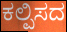
ಕಲ್ಪಿಸದ